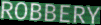
ROBBERY